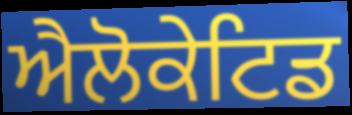
ਐਲੋਕੇਟਿਡ